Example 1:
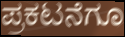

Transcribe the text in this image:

ಪ್ರಕಟನೆಗೂ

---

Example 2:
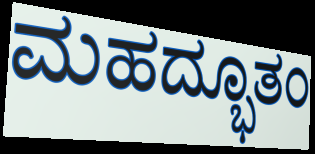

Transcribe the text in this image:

ಮಹದ್ಭೂತಂ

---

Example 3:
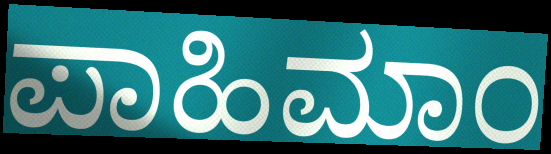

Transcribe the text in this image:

ಪಾಹಿಮಾಂ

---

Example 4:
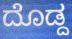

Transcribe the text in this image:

ದೊಡ್ದ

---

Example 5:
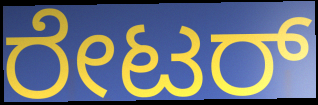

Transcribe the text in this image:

ರೇಟರ್